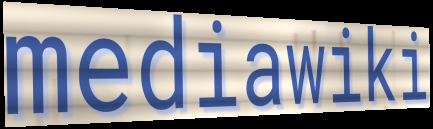
mediawiki